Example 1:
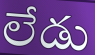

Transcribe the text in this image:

లేడు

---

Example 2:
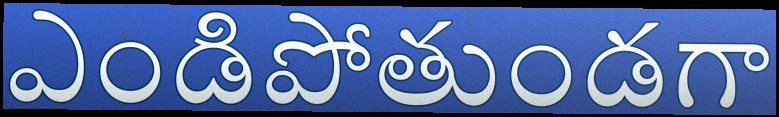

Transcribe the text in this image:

ఎండిపోతుండగా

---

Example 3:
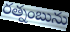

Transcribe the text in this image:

రత్నంబును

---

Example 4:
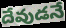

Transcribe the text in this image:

దేవుడనే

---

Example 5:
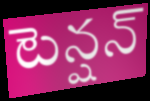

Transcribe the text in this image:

టెన్షన్